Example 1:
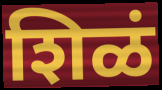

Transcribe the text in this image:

शिळं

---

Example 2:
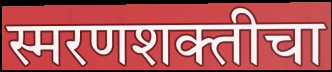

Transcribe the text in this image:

स्मरणशक्तीचा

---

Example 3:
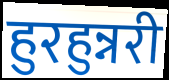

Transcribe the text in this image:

हुरहुन्नरी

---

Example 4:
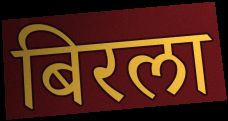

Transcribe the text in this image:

बिरला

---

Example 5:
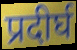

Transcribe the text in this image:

प्रदीर्घ